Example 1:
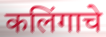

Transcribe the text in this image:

कलिंगाचे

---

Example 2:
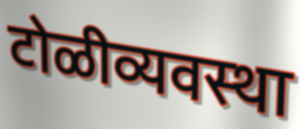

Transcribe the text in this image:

टोळीव्यवस्था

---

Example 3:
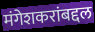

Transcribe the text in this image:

मंगेशकरांबद्दल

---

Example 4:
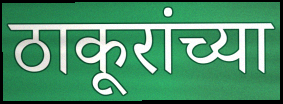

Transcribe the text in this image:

ठाकूरांच्या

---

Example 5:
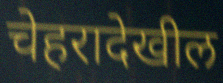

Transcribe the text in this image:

चेहरादेखील